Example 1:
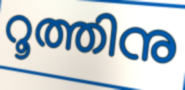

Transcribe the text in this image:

റൂത്തിനു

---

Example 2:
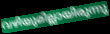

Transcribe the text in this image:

വഴിയുമില്ലായിരുന്നു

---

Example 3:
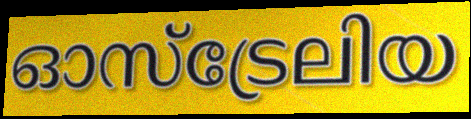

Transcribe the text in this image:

ഓസ്ട്രേലിയ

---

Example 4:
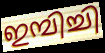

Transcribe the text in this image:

ഇമ്പിച്ചി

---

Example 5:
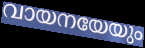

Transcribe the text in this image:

വായനയേയും